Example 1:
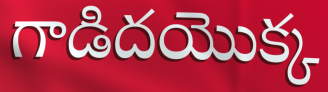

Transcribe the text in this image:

గాడిదయొక్క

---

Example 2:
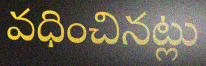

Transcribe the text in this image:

వధించినట్లు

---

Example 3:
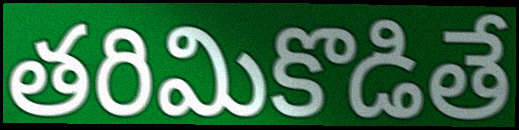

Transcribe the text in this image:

తరిమికొడితే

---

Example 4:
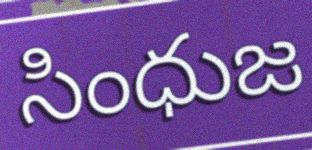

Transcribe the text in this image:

సింధుజ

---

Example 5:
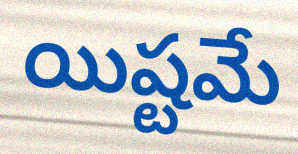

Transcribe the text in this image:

యిష్టమే